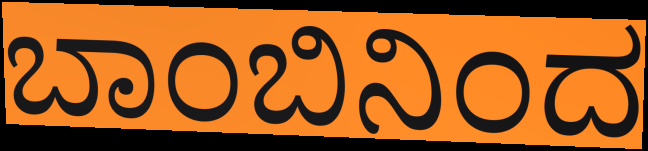
ಬಾಂಬಿನಿಂದ